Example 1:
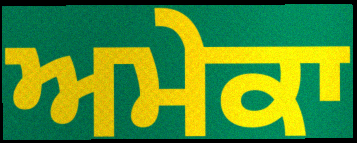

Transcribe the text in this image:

ਅਮੇਕਾ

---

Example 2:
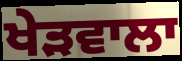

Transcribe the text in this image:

ਖੇੜਵਾਲਾ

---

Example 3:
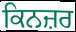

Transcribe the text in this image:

ਕਿਨਜ਼ਰ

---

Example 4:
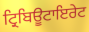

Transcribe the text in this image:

ਟ੍ਰਿਬਿਊਟਾਇਰੇਟ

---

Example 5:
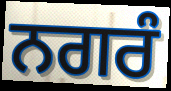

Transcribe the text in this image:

ਨਗਰੰ